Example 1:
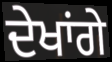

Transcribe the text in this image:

ਦੇਖਾਂਗੇ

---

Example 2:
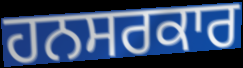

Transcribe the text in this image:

ਹਨਸਰਕਾਰ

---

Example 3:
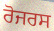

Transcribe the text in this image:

ਰੋਜਰਸ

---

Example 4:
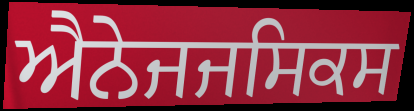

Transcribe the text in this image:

ਐਨੇਜਜਸਿਕਸ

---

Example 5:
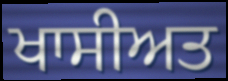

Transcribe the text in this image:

ਖਾਸੀਅਤ